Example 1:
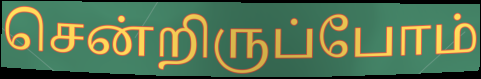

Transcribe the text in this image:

சென்றிருப்போம்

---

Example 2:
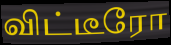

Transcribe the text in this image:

விட்டீரோ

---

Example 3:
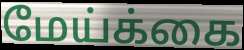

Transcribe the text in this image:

மேய்க்கை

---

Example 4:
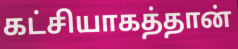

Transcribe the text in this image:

கட்சியாகத்தான்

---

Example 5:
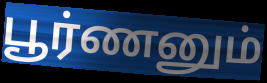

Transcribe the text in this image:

பூர்ணனும்